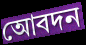
আেবদন